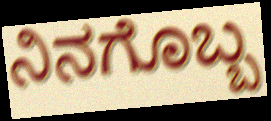
ನಿನಗೊಬ್ಬ